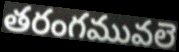
తరంగమువలె